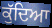
ਕੁੱਦਿਆ